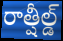
రాత్షీల్డ్